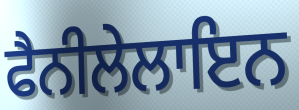
ਫੈਨੀਲੇਲਾਇਨ